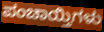
ಪಂಚಾಯ್ತಿಗಳು